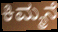
ಕಿಮ್ಮನೆ